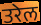
उरेल